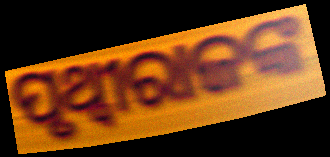
ପୃଥ୍ଵୀରାଜଙ୍କ